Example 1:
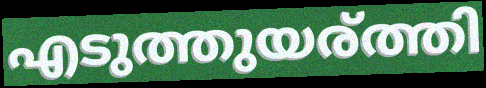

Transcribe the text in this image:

എടുത്തുയര്ത്തി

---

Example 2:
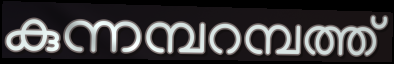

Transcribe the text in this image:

കുന്നമ്പറമ്പത്ത്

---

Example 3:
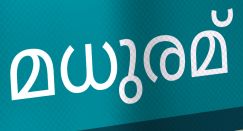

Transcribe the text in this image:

മധുരമ്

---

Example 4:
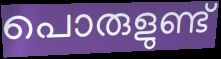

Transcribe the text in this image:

പൊരുളുണ്ട്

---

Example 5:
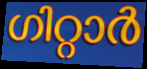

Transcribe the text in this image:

ഗിറ്റാർ